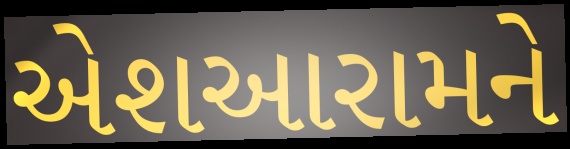
એશઆરામને